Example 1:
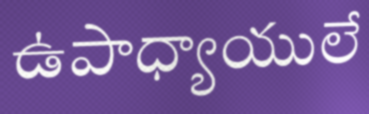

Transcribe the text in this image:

ఉపాధ్యాయులే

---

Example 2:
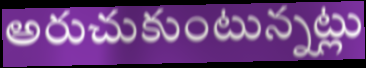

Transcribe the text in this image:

అరుచుకుంటున్నట్లు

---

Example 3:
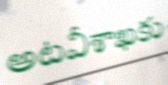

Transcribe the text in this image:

అటవీశాఖకు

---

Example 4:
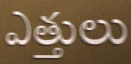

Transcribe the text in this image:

ఎత్తులు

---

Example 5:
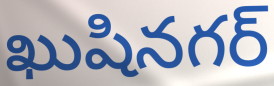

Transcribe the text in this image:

ఖుషినగర్